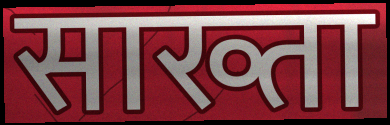
साख्ता